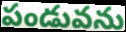
పండువను